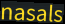
nasals